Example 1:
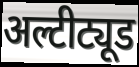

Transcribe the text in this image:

अल्टीट्यूड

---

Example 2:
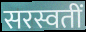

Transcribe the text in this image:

सरस्वतीं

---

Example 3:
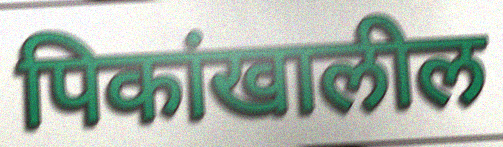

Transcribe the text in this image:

पिकांखालील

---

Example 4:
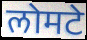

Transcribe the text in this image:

लोमटे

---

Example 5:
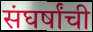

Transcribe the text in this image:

संघर्षांची